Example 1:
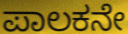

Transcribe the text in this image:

ಪಾಲಕನೇ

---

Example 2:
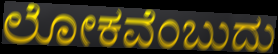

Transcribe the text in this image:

ಲೋಕವೆಂಬುದು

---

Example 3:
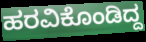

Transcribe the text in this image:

ಹರವಿಕೊಂಡಿದ್ದ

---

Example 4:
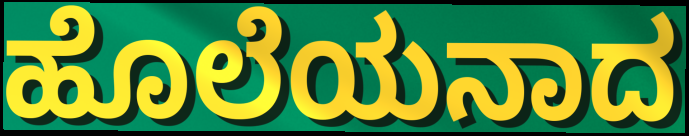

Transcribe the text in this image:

ಹೊಲೆಯನಾದ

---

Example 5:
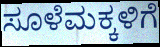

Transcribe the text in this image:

ಸೂಳೆಮಕ್ಕಳಿಗೆ